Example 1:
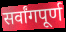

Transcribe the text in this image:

सर्वांगपूर्ण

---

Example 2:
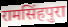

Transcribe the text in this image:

रामसिंहपुरा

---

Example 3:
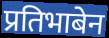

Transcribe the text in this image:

प्रतिभाबेन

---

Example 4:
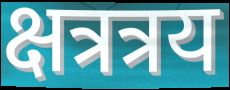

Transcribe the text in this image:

क्षत्रत्रय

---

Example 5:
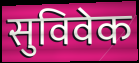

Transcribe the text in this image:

सुविवेक